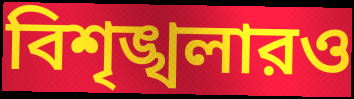
বিশৃঙ্খলারও